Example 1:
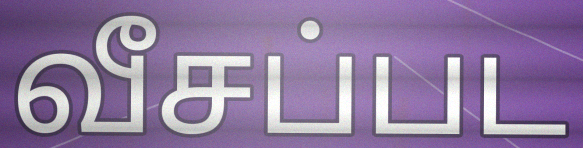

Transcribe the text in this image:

வீசப்பட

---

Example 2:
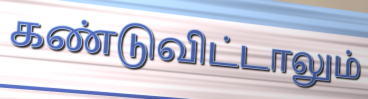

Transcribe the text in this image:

கண்டுவிட்டாலும்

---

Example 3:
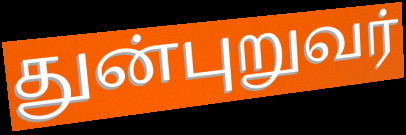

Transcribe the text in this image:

துன்புறுவர்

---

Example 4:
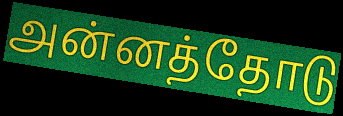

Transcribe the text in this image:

அன்னத்தோடு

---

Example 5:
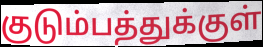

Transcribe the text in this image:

குடும்பத்துக்குள்